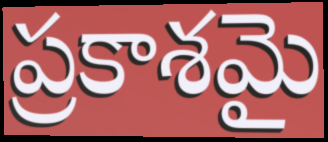
ప్రకాశమై